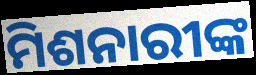
ମିଶନାରୀଙ୍କ